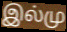
இல்மு